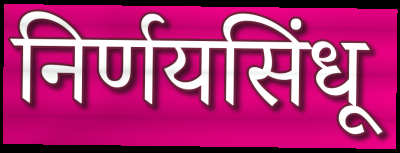
निर्णयसिंधू